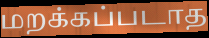
மறக்கப்படாத